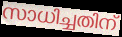
സാധിച്ചതിന്